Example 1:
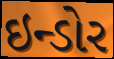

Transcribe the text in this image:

ઇન્ડોર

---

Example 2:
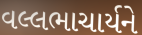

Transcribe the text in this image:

વલ્લભાચાર્યને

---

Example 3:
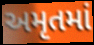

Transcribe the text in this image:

અમૃતમાં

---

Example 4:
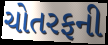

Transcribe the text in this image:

ચોતરફની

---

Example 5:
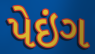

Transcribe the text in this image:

પેઇંગ